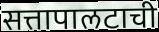
सत्तापालटाची